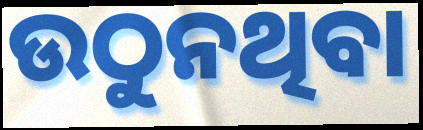
ଉଠୁନଥିବା